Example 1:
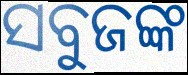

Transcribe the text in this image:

ସବୁଜଙ୍କ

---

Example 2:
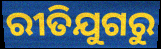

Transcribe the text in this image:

ରୀତିଯୁଗରୁ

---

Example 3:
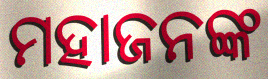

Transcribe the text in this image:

ମହାଜନଙ୍କ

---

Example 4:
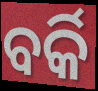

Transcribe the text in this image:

ବର୍କି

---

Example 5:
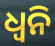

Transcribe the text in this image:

ଧ୍ବନି